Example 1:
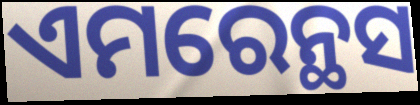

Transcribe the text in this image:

ଏମରେନ୍ଥସ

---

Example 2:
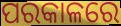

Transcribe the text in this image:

ପରକାଳରେ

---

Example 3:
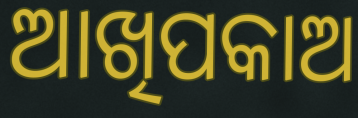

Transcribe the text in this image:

ଆଖିପକାଅ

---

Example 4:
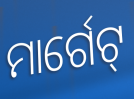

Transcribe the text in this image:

ମାର୍ଗେଟ୍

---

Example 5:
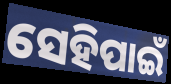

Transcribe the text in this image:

ସେହିପାଇଁ